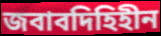
জবাবদিহিহীন